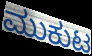
ಮುಕುಟ